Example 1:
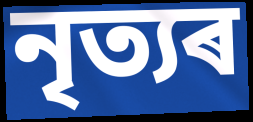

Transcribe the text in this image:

নৃত্যৰ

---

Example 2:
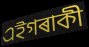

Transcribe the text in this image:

এইগৰাকী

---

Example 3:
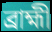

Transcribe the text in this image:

ব্ৰাহ্মী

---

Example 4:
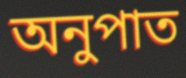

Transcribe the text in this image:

অনুপাত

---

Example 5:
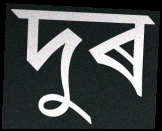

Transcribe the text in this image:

দুৰ